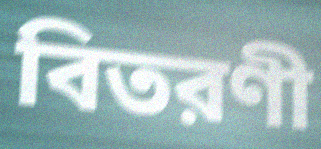
বিতরণী